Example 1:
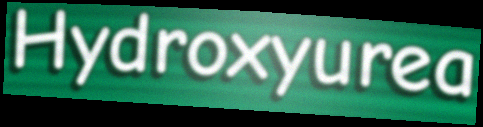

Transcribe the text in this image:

Hydroxyurea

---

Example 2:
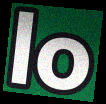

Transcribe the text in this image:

lo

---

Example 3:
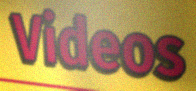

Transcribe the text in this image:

Videos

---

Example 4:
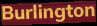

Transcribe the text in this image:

Burlington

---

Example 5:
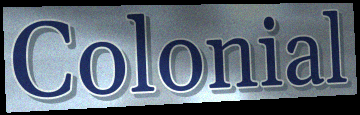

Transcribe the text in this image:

Colonial